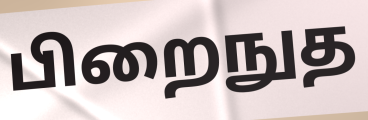
பிறைநுத